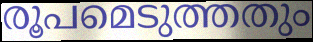
രൂപമെടുത്തതും